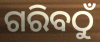
ଗରିବଠୁଁ